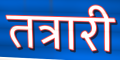
तत्रारी